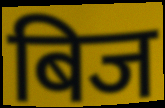
बिज